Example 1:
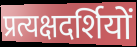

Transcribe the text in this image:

प्रत्यक्षदर्शियों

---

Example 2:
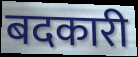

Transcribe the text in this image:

बदकारी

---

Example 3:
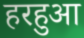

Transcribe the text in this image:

हरहुआ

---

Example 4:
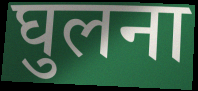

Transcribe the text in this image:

घुलना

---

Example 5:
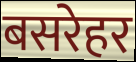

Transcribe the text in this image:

बसरेहर